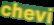
chevi